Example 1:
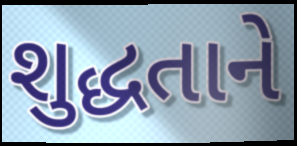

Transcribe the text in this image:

શુદ્ધતાને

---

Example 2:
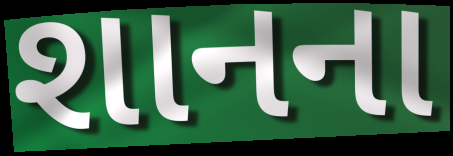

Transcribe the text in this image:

શાનના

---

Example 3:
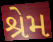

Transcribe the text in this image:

શ્રેમ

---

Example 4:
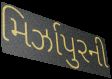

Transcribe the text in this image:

મિર્ઝાપુરની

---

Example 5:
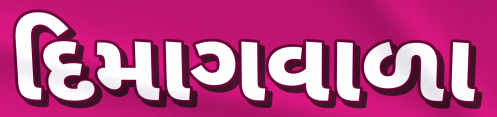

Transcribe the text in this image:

દિમાગવાળા